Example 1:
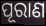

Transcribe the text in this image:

ପୂରାଣ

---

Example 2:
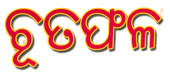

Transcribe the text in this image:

ଚୂତଫଳ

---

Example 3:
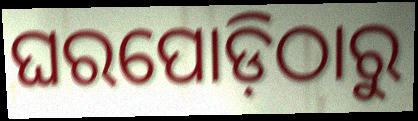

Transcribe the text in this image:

ଘରପୋଡ଼ିଠାରୁ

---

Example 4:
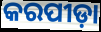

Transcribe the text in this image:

କରପୀଡ଼ା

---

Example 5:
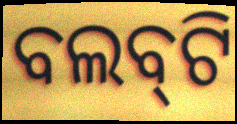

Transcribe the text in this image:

ବଲବ୍‌ଟି